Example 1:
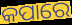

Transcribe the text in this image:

କପାରେ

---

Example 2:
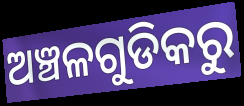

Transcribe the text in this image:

ଅଞ୍ଚଳଗୁଡିକରୁ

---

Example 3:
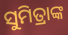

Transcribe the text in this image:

ସୁମିତ୍ରାଙ୍କ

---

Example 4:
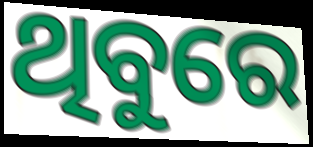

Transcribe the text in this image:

ଥିବୁରେ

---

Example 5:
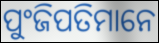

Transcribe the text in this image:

ପୁଂଜିପତିମାନେ